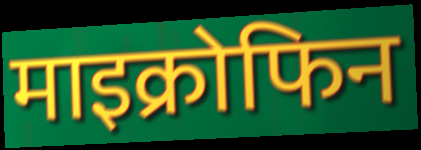
माइक्रोफिन